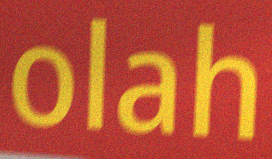
olah